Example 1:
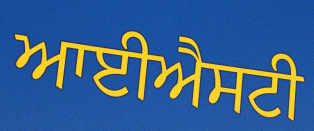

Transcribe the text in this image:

ਆਈਐਸਟੀ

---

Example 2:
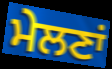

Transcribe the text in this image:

ਮੇਲਣਾਂ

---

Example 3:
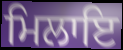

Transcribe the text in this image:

ਮਿਲਾਇ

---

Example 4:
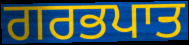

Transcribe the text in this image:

ਗਰਭਪਾਤ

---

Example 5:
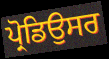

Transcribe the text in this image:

ਪ੍ਰੋਡਿਉਸਰ